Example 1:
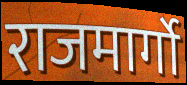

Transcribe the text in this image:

राजमार्गो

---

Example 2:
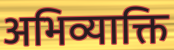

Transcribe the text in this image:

अभिव्याक्ति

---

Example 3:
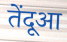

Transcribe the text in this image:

तेंदूआ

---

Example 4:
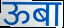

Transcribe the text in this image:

ऊबा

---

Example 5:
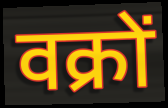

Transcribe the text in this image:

वक्रों